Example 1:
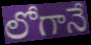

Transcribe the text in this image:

లోగానే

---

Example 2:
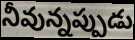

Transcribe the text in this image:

నీవున్నప్పుడు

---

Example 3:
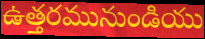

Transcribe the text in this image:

ఉత్తరమునుండియు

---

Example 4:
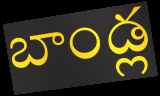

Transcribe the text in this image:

బాండ్ల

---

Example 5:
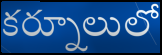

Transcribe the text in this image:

కర్నూలులో